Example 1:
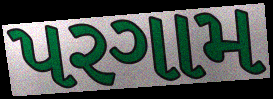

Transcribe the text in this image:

પરગામ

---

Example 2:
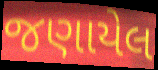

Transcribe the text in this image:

જણાયેલ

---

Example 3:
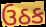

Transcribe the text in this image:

ઉઠક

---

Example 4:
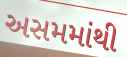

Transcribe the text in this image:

અસમમાંથી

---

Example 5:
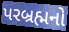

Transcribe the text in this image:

પરબ્રહ્મનો